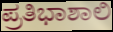
ಪ್ರತಿಭಾಶಾಲಿ